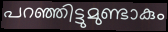
പറഞ്ഞിട്ടുമുണ്ടാകും